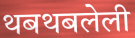
थबथबलेली